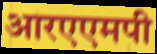
आरएएमपी